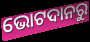
ଭୋଟଦାନରୁ